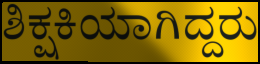
ಶಿಕ್ಷಕಿಯಾಗಿದ್ದರು